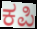
ಕಪಿ